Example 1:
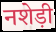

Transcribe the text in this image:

नशेड़ी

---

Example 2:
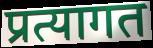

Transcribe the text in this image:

प्रत्यागत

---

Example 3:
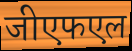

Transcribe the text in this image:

जीएफएल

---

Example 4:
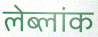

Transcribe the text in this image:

लेब्लांक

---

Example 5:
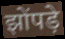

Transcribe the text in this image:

झोंपड़े